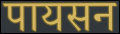
पायसन